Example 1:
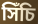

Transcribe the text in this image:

সিঁচি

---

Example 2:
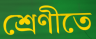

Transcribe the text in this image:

শ্ৰেণীতে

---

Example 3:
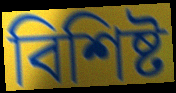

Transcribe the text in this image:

বিশিষ্ট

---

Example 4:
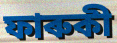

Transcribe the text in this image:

ফাৰুকী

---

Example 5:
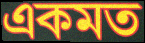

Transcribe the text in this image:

একমত